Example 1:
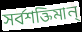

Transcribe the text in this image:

সর্বশক্তিমান্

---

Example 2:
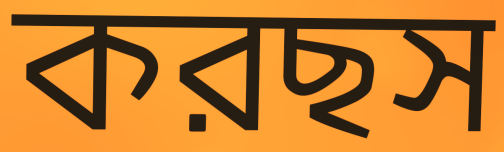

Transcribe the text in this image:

করছস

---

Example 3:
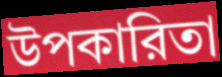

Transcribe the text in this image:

উপকারিতা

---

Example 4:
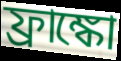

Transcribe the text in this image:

ফ্রাঙ্কো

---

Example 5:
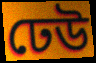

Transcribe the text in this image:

ঢেউ